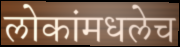
लोकांमधलेच